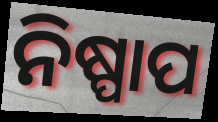
ନିଷ୍ପାପ